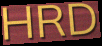
HRD